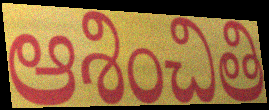
ఆశించితి